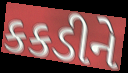
કકડીને